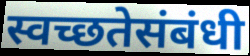
स्वच्छतेसंबंधी